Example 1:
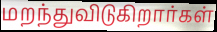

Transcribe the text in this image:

மறந்துவிடுகிறார்கள்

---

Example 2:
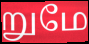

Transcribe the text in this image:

றுமே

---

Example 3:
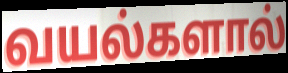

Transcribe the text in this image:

வயல்களால்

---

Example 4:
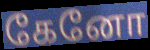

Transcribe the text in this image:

கேனோ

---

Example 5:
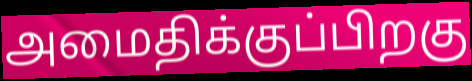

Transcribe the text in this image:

அமைதிக்குப்பிறகு